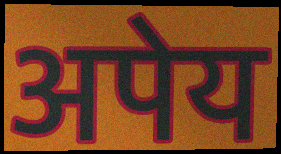
अपेय